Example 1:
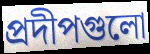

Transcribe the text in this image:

প্রদীপগুলো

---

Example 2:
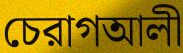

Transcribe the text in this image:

চেরাগআলী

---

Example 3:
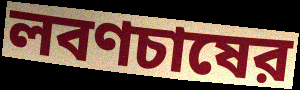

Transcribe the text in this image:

লবণচাষের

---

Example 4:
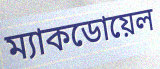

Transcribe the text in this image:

ম্যাকডোয়েল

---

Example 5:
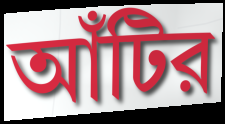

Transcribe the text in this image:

আঁটির